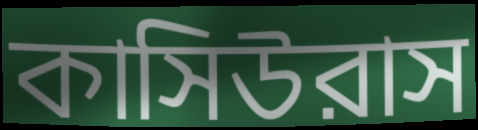
কাসিউরাস